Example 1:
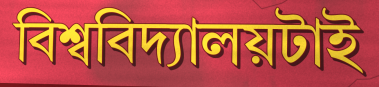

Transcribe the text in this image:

বিশ্ববিদ্যালয়টাই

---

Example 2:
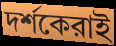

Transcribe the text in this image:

দর্শকেরাই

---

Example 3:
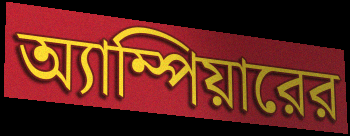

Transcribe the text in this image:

অ্যাম্পিয়ারের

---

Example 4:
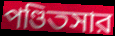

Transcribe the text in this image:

পণ্ডিতসার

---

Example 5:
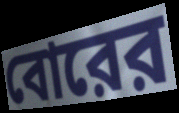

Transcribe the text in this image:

বোরের